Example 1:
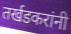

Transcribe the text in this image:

तर्खडकरांनी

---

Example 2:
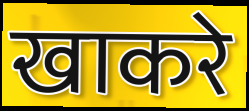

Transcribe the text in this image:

खाकरे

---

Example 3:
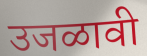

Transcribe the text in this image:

उजळावी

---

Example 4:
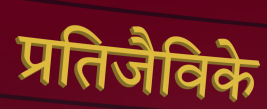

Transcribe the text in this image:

प्रतिजैविके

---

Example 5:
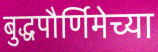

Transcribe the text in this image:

बुद्धपौर्णिमेच्या